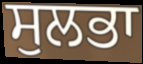
ਸੁਲਭਾ